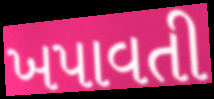
ખપાવતી